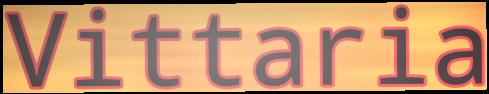
Vittaria